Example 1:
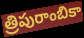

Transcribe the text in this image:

త్రిపురాంబికా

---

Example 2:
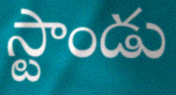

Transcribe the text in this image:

స్టాండు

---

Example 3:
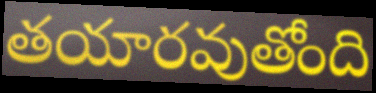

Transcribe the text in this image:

తయారవుతోంది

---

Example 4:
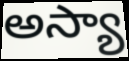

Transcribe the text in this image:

అస్యా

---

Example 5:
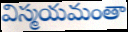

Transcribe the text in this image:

విస్మయమంతా